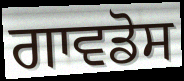
ਗਾਵਡੋਸ